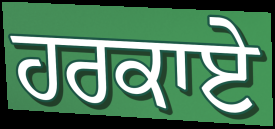
ਹਰਕਾਏ